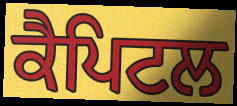
ਕੈਪਿਟਲ